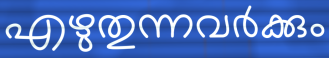
എഴുതുന്നവർക്കും